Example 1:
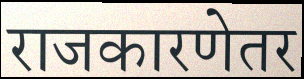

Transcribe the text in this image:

राजकारणेतर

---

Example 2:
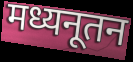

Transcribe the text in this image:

मध्यनूतन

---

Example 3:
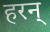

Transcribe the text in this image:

हरन्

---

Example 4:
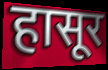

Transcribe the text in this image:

हासूर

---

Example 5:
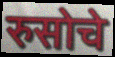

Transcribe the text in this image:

रुसोचे